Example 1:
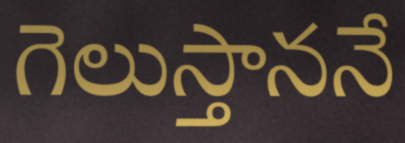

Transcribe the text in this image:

గెలుస్తాననే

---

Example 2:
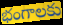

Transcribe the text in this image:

భంగాలకు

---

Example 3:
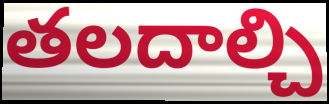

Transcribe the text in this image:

తలదాల్చి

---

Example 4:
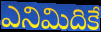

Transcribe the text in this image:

ఎనిమిదికే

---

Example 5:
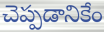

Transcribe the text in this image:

చెప్పడానికేం